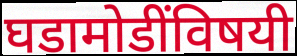
घडामोडींविषयी